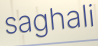
saghali